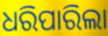
ଧରିପାରିଲା